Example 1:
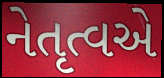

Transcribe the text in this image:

નેતૃત્વએ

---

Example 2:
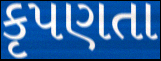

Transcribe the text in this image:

કૃપણતા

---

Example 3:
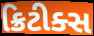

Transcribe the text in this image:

ક્રિટીક્સ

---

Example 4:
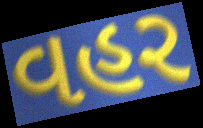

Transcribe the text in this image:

વહર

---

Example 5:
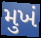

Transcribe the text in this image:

મુખં